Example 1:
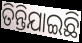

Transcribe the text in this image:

ତିନ୍ତିଯାଇଛି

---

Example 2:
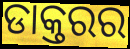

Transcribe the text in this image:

ଡାକ୍ତରର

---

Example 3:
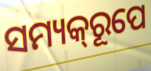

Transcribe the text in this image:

ସମ୍ୟକ୍‌ରୂପେ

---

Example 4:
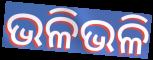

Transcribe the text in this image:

ଭଳିଭଳି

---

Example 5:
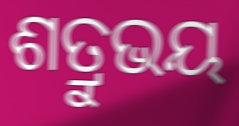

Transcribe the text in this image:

ଶତ୍ରୁଭୟ